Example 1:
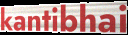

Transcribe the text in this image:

kantibhai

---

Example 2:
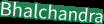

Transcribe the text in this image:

Bhalchandra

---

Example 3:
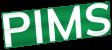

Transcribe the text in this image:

PIMS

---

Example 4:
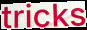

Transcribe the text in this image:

tricks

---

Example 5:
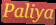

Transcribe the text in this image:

Paliya